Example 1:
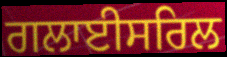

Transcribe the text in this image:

ਗਲਾਈਸਰਿਲ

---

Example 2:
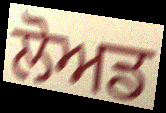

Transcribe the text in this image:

ਲੋਅਡ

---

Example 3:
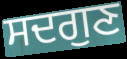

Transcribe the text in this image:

ਸਦਗੁਣ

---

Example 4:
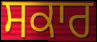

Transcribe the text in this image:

ਸਕਾਰ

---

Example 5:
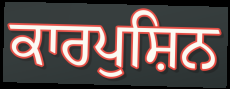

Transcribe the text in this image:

ਕਾਰਪੁਸ਼ਿਨ